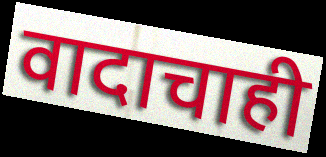
वादाचाही